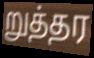
றுத்தர